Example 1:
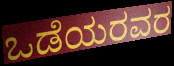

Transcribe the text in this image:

ಒಡೆಯರವರ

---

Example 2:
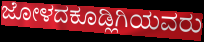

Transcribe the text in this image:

ಜೋಳದಕೂಡ್ಲಿಗಿಯವರು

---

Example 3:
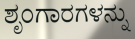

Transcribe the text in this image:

ಶೃಂಗಾರಗಳನ್ನು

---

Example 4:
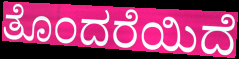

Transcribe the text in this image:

ತೊಂದರೆಯಿದೆ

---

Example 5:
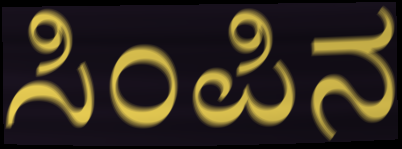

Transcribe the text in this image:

ಸಿಂಪಿನ